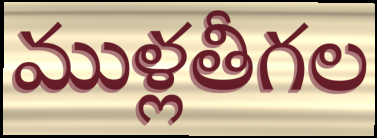
ముళ్లతీగల